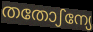
തതോഽന്യേ